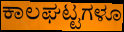
ಕಾಲಘಟ್ಟಗಳೂ